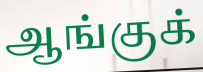
ஆங்குக்